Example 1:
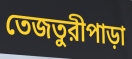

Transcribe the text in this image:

তেজতুরীপাড়া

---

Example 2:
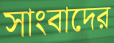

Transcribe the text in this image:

সাংবাদের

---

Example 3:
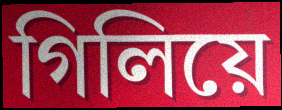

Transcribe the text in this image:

গিলিয়ে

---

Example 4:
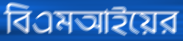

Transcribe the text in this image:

বিএমআইয়ের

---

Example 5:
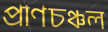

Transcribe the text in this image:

প্রাণচঞ্চল